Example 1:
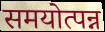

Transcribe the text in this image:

समयोत्पन्न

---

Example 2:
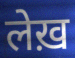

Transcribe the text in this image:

लेख़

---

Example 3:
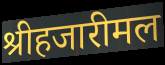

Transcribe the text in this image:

श्रीहजारीमल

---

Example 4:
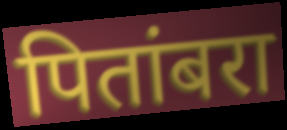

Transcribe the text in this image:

पितांबरा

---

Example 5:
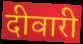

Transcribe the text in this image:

दीवारी